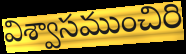
విశ్వాసముంచిరి